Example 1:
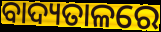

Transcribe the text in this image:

ବାଦ୍ୟତାଳରେ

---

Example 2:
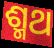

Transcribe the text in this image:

ଶ୍ମଥ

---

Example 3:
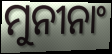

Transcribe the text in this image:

ମୁନୀନାଂ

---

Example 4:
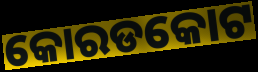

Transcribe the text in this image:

କୋରଡକୋଟ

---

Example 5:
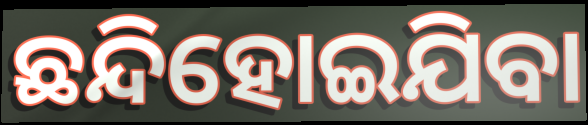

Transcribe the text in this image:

ଛନ୍ଦିହୋଇଯିବା